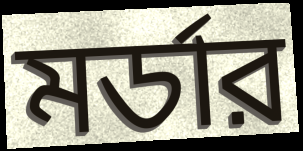
মর্ডার